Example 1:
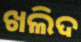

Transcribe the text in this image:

ଖଲିଦ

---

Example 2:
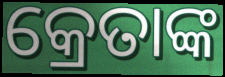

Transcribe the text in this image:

କ୍ରେତାଙ୍କ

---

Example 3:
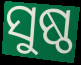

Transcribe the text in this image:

ସୁଷ୍ଠ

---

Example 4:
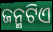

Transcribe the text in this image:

ଜନ୍ମଟିଏ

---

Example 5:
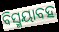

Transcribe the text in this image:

ବିସ୍ମୟାବହ